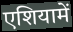
एशियामें